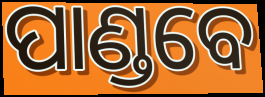
ପାଣ୍ଡବେ